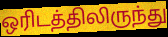
ஒரிடத்திலிருந்து